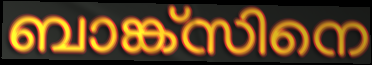
ബാങ്ക്സിനെ